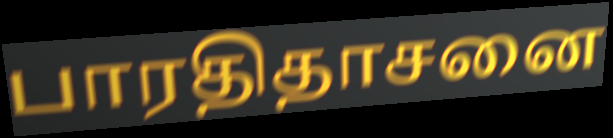
பாரதிதாசனை